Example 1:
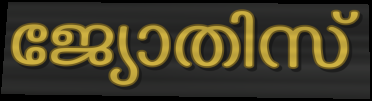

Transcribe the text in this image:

ജ്യോതിസ്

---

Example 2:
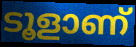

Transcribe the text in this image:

ടൂളാണ്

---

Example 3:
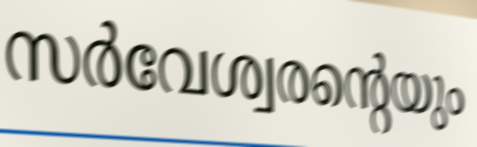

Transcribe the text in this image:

സർവേശ്വരന്റെയും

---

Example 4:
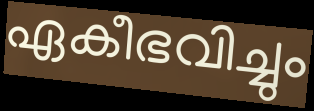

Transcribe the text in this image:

ഏകീഭവിച്ചും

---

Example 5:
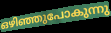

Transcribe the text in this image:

ഒഴിഞ്ഞുപോകുന്നു